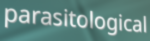
parasitological